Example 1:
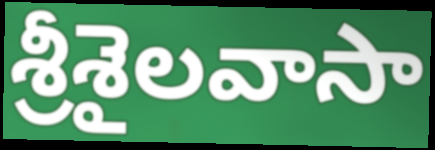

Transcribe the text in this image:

శ్రీశైలవాసా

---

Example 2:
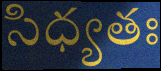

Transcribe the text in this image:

సిధ్యతః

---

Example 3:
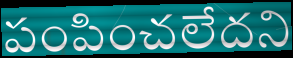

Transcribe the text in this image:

పంపించలేదని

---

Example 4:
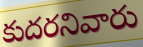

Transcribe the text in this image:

కుదరనివారు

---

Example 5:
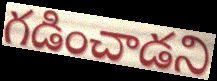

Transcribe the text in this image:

గడించాడని